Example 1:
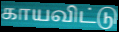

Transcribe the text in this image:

காயவிட்டு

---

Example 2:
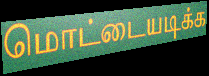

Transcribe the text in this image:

மொட்டையடிக்க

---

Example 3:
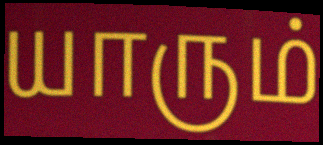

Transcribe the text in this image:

யாரும்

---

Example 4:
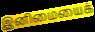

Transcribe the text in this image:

இனிமையைக்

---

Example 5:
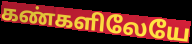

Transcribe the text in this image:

கண்களிலேயே